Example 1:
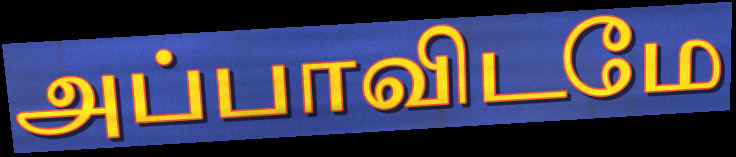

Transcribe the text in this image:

அப்பாவிடமே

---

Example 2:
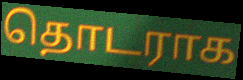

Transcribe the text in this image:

தொடராக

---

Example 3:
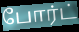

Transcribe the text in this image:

போர்ட்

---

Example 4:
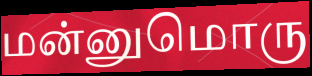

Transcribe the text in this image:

மன்னுமொரு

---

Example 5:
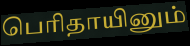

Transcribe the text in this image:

பெரிதாயினும்